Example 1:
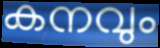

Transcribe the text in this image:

കനവും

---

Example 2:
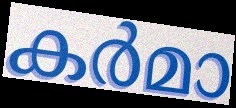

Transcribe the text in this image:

കർമാ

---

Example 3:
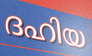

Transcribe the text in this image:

ദഹിയ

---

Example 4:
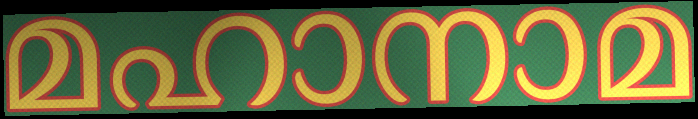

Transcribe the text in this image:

മഹാനാമ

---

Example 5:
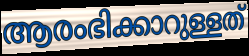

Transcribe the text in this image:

ആരംഭിക്കാറുള്ളത്